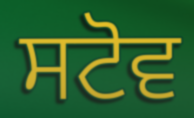
ਸਟੋਵ